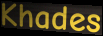
Khades